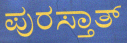
ಪುರಸ್ತಾತ್